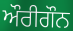
ਔਰੀਗੌਨ